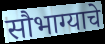
सौभाग्याचे